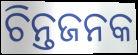
ଚିନ୍ତଜନକ